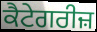
ਕੈਟੇਗਰੀਜ਼